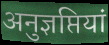
अनुज्ञप्तियां